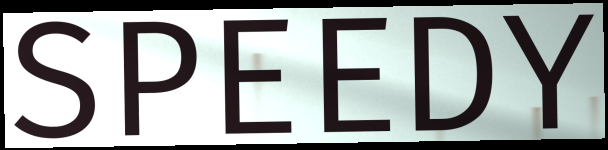
SPEEDY